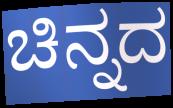
ಚಿನ್ನದ